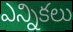
ఎన్నికలు